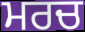
ਮਰਚ